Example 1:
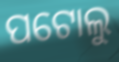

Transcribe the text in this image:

ପଟୋଲୁ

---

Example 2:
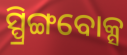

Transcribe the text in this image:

ସ୍ପ୍ରିଙ୍ଗବୋକ୍ସ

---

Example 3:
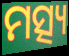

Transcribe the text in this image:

ମତ୍ସ୍ୟ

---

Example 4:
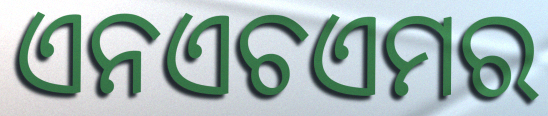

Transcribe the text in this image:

ଏନଏଚଏମର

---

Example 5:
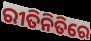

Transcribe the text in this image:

ରୀତିନିତିରେ